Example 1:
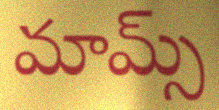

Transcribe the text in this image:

మామ్స్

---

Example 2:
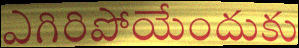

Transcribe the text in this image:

ఎగిరిపోయేందుకు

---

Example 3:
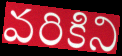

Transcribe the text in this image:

వరికిని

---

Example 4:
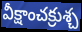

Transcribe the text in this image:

వీక్షాంచక్రుశ్చ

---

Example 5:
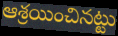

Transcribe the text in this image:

ఆశ్రయించినట్టు